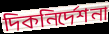
দিকনির্দেশনা